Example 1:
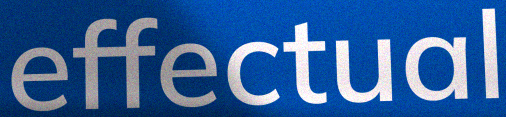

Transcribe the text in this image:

effectual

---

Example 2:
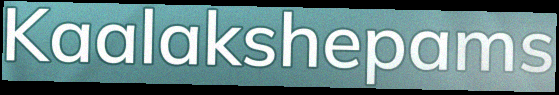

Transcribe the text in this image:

Kaalakshepams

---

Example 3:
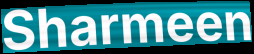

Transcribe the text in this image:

Sharmeen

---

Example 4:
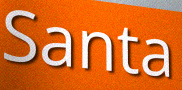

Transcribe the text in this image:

Santa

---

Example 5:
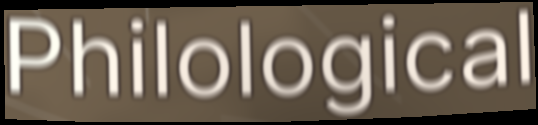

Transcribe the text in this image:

Philological